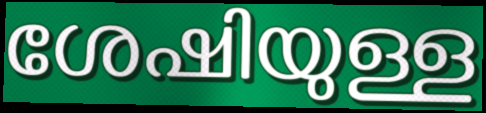
ശേഷിയുള്ള